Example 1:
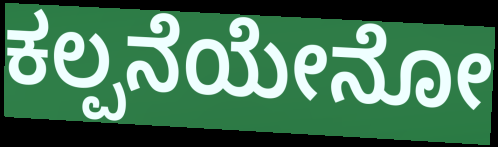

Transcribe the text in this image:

ಕಲ್ಪನೆಯೇನೋ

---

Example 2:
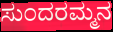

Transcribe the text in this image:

ಸುಂದರಮ್ಮನ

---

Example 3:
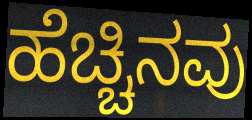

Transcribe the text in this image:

ಹೆಚ್ಚಿನವು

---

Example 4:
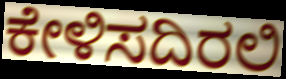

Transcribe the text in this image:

ಕೇಳಿಸದಿರಲಿ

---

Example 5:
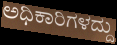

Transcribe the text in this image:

ಅಧಿಕಾರಿಗಳದ್ದು